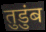
तुडुंब